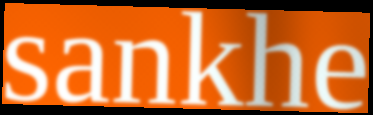
sankhe